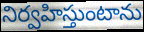
నిర్వహిస్తుంటాను